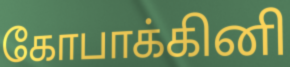
கோபாக்கினி